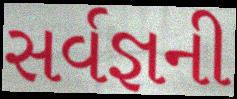
સર્વજ્ઞની